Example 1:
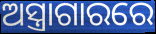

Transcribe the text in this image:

ଅସ୍ତ୍ରାଗାରରେ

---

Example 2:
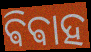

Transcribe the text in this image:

ଵିଵାହ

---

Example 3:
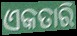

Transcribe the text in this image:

ଏକତାରି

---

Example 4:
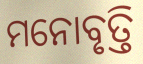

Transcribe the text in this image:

ମନୋବୃତ୍ତି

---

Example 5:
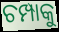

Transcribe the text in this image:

ଚମ୍ପାକୁ